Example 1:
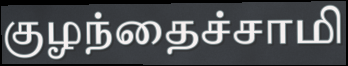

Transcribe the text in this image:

குழந்தைச்சாமி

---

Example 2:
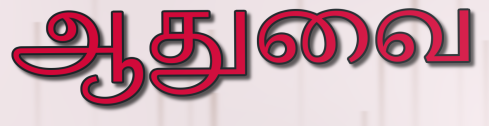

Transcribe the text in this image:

ஆதுவை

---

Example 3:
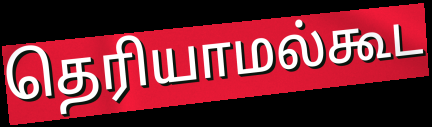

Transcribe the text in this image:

தெரியாமல்கூட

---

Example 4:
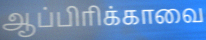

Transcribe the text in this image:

ஆப்பிரிக்காவை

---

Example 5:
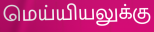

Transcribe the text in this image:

மெய்யியலுக்கு